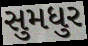
સુમધુર